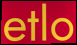
etlo